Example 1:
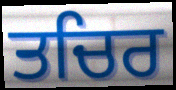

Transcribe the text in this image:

ਤਚਿਰ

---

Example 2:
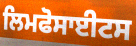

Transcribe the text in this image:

ਲਿਮਫੋਸਾਈਟਸ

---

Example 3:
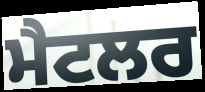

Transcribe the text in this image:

ਮੈਟਲਰ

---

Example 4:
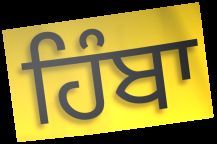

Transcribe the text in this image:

ਹਿੰਬਾ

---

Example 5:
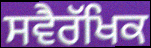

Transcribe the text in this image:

ਸਵੈਰੱਖਿਕ